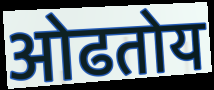
ओढतोय